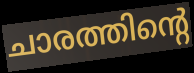
ചാരത്തിന്റെ